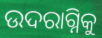
ଉଦରାଗ୍ନିକୁ